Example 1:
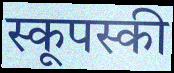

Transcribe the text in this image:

स्कूपस्की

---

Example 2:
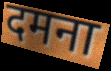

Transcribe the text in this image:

दमना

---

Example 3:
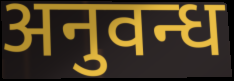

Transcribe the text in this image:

अनुवन्ध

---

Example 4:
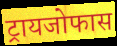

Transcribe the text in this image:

ट्रायजोफास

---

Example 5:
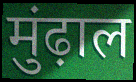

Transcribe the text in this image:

मुंढ़ाल